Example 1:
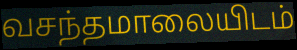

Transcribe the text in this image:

வசந்தமாலையிடம்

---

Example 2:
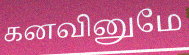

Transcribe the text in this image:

கனவினுமே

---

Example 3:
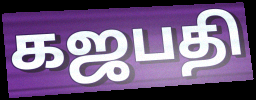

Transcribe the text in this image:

கஜபதி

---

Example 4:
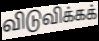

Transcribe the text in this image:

விடுவிக்கக்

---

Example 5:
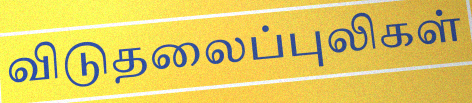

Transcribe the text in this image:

விடுதலைப்புலிகள்